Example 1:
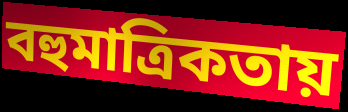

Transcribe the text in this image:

বহুমাত্রিকতায়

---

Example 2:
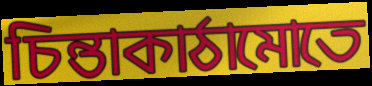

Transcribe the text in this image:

চিন্তাকাঠামোতে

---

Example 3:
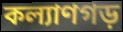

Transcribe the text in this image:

কল্যাণগড়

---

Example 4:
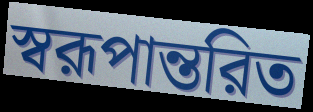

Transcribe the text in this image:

স্বরূপান্তরিত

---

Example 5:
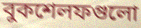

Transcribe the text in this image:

বুকশেলফগুলো